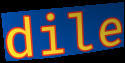
dile